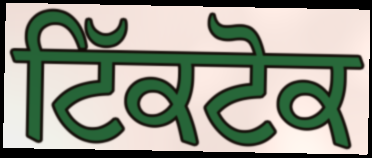
ਟਿੱਕਟੋਕ